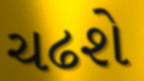
ચઢશે